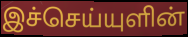
இச்செய்யுளின்